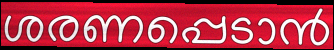
ശരണപ്പെടാൻ